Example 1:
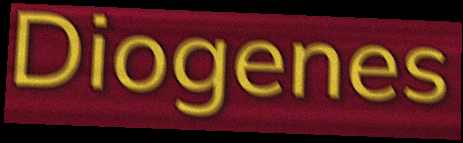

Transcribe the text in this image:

Diogenes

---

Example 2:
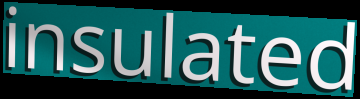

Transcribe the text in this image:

insulated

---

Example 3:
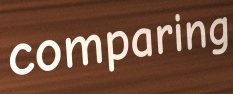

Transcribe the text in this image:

comparing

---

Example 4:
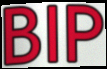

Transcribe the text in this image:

BIP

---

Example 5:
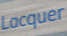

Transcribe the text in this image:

Lacquer